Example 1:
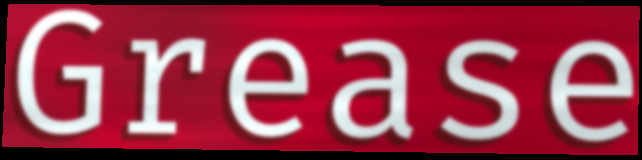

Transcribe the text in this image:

Grease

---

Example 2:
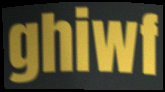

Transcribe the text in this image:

ghiwf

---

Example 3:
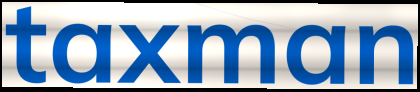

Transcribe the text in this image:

taxman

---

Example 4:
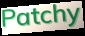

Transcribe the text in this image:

Patchy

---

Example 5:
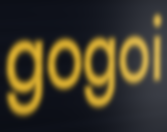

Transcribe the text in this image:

gogoi